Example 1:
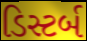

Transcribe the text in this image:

ડિસ્ટર્બ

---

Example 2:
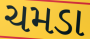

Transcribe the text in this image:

ચમડા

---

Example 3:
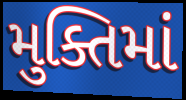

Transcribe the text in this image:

મુક્તિમાં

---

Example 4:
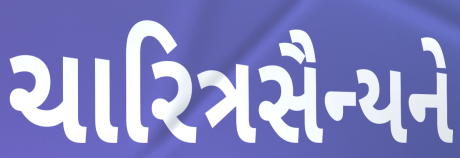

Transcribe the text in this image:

ચારિત્રસૈન્યને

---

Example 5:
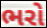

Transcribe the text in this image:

ભરો